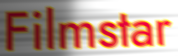
Filmstar